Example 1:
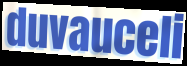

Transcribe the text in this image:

duvauceli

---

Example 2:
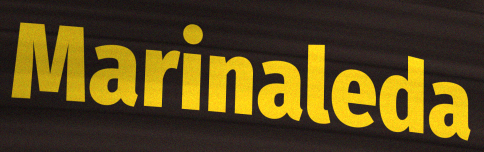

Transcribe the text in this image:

Marinaleda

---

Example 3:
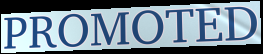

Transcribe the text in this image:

PROMOTED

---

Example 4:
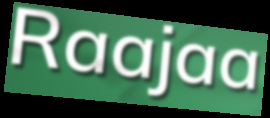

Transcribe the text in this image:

Raajaa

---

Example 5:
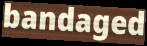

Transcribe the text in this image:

bandaged